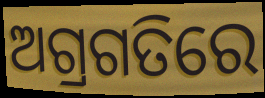
ଅଗ୍ରଗତିରେ